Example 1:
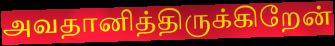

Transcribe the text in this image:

அவதானித்திருக்கிறேன்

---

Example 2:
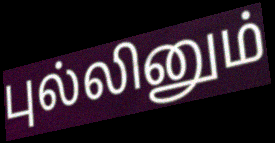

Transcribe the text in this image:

புல்லினும்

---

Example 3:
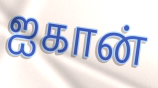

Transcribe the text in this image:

ஐகான்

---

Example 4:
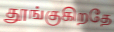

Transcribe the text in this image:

தூங்குகிறதே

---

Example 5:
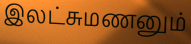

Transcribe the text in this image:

இலட்சுமணனும்